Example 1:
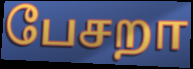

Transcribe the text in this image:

பேசறா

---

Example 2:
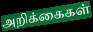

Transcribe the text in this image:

அறிக்கைகள்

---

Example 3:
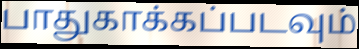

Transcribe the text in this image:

பாதுகாக்கப்படவும்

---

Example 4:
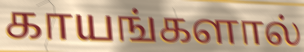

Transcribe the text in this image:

காயங்களால்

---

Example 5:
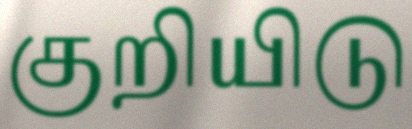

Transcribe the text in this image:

குறியிடு